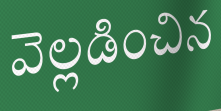
వెల్లడించిన